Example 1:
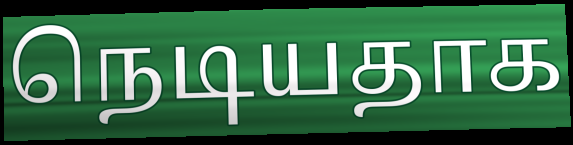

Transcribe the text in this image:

நெடியதாக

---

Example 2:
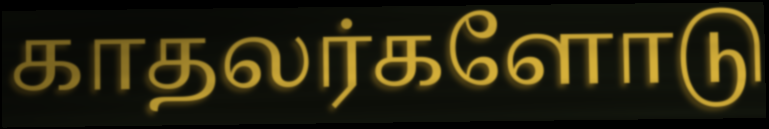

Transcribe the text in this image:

காதலர்களோடு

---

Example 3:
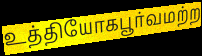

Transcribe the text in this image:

உத்தியோகபூர்வமற்ற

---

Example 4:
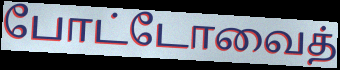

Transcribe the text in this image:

போட்டோவைத்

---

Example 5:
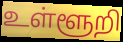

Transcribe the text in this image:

உள்ளூறி